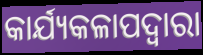
କାର୍ଯ୍ୟକଳାପଦ୍ୱାରା